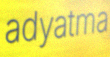
adyatma